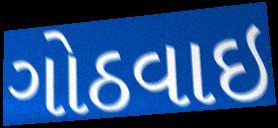
ગોઠવાઇ